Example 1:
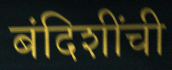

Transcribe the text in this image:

बंदिशींची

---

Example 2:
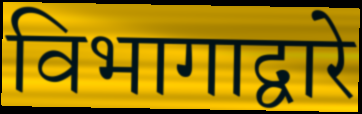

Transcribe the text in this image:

विभागाद्वारे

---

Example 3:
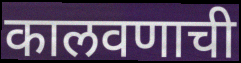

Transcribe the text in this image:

कालवणाची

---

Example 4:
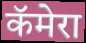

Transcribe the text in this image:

कॅमेरा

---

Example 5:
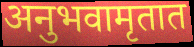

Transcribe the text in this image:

अनुभवामृतात